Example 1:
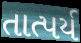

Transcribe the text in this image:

તાત્પર્ય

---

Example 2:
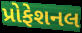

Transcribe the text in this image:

પ્રોફેશનલ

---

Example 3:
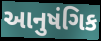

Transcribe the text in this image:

આનુષંગિક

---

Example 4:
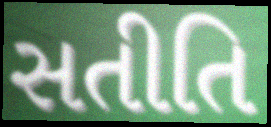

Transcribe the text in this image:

સતીતિ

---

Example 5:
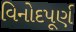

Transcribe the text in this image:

વિનોદપૂર્ણ